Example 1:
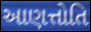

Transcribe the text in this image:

આણત્તોતિ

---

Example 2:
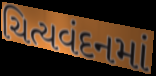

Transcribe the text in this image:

ચિત્યવંદનમાં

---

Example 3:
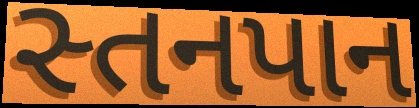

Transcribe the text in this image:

સ્તનપાન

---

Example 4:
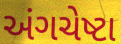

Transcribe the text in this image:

અંગચેષ્ટા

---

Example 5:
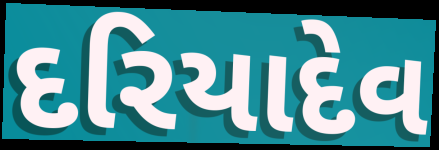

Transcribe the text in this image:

દરિયાદેવ